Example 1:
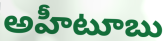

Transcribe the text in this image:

అహీటూబు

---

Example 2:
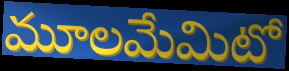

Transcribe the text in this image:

మూలమేమిటో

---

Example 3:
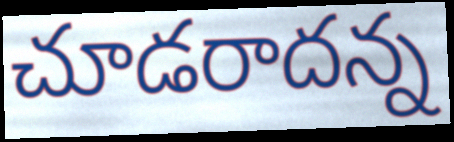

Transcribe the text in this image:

చూడరాదన్న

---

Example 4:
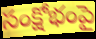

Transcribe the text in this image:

సంక్షోభంపై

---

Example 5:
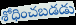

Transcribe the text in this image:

శోధించబడడు